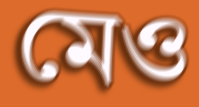
মেও